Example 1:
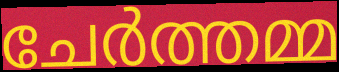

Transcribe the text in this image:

ചേർത്തമ്മ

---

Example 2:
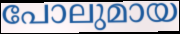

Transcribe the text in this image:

പോലുമായ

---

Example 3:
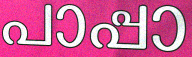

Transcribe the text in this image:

പാപ്പാ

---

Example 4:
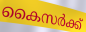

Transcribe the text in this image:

കൈസർക്ക്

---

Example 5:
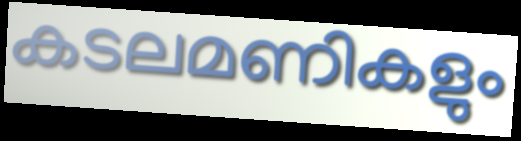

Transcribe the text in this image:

കടലമണികളും